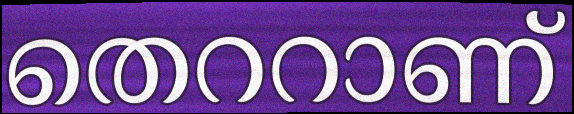
തെററാണ്